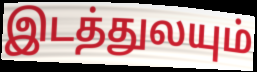
இடத்துலயும்